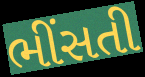
ભીંસતી